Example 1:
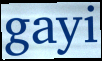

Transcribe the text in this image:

gayi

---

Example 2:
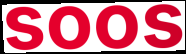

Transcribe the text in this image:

soos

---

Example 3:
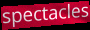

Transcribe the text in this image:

spectacles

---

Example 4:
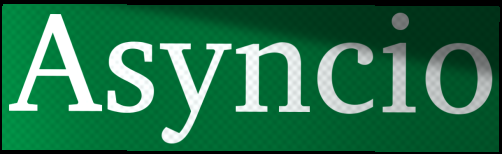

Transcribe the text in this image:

Asyncio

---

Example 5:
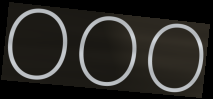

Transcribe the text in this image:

OOO